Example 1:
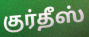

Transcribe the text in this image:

குர்தீஸ்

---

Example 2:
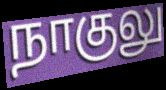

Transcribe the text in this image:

நாகுலு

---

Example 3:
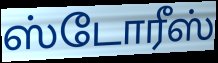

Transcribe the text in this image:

ஸ்டோரீஸ்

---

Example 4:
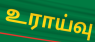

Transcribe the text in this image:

உராய்வு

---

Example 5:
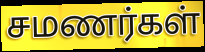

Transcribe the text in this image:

சமணர்கள்